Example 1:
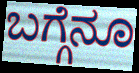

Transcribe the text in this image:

ಬಗ್ಗೆನೂ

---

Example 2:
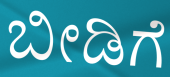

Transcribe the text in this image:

ಬೀಡಿಗೆ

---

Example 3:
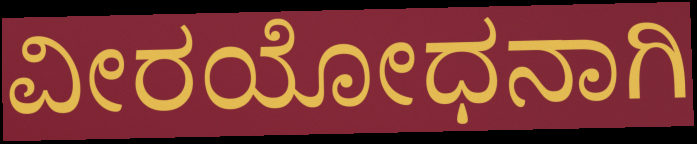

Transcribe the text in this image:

ವೀರಯೋಧನಾಗಿ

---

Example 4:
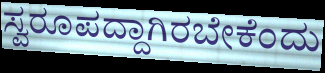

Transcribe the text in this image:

ಸ್ವರೂಪದ್ದಾಗಿರಬೇಕೆಂದು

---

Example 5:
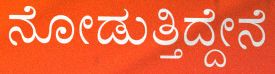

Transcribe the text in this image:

ನೋಡುತ್ತಿದ್ದೇನೆ